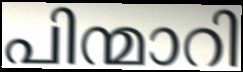
പിന്മാറി